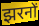
झरनों